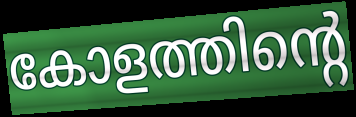
കോളത്തിന്റെ